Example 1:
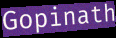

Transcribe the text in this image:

Gopinath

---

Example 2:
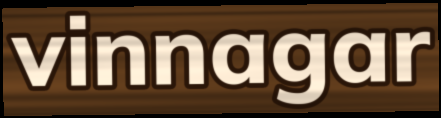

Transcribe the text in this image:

vinnagar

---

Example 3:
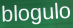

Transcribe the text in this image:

blogulo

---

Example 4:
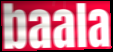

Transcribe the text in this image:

baala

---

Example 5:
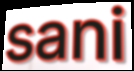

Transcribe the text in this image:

sani